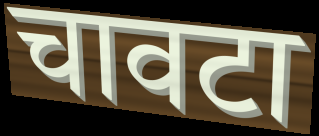
चावटा